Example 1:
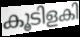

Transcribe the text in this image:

കൂടിളകി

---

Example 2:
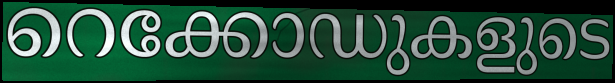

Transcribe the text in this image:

റെക്കോഡുകളുടെ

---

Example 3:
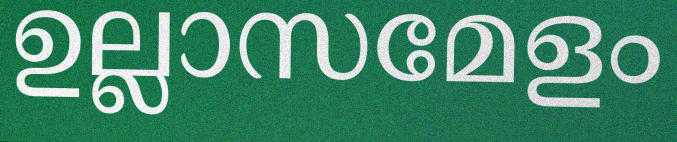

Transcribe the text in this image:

ഉല്ലാസമേളം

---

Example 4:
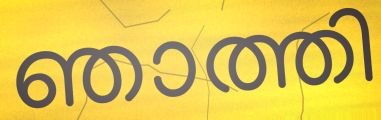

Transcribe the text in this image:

ഞാത്തി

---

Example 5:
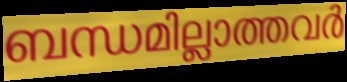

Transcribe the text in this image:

ബന്ധമില്ലാത്തവർ